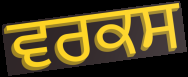
ਵਰਕਸ